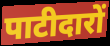
पाटीदारों